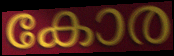
കോര